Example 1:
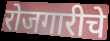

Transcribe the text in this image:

रोजगारीचे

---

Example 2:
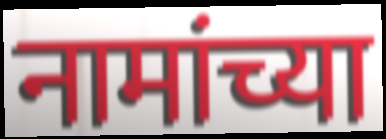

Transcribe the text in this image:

नामांच्या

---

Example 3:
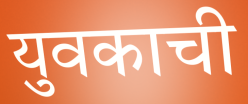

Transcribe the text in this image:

युवकाची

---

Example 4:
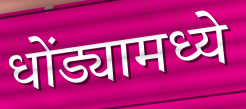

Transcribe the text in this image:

धोंड्यामध्ये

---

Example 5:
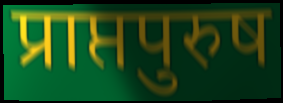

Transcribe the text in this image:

प्राप्तपुरुष